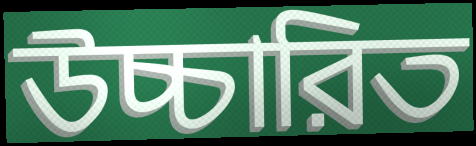
উচ্চারিত